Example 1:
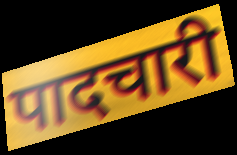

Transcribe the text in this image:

पादचारी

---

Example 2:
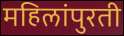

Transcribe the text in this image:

महिलांपुरती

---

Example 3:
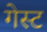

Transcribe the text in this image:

गेस्ट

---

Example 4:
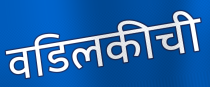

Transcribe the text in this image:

वडिलकीची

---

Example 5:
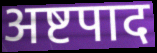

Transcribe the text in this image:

अष्टपाद